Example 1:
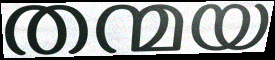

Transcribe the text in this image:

തന്മയ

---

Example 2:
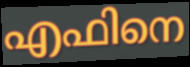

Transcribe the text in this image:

എഫിനെ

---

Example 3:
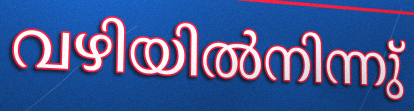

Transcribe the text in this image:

വഴിയിൽനിന്നു്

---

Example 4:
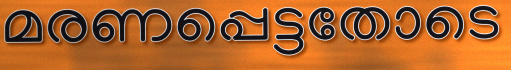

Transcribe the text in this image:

മരണപ്പെട്ടതോടെ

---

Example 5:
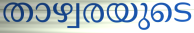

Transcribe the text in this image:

താഴ്വരയുടെ